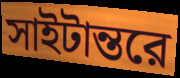
সাইটান্তরে